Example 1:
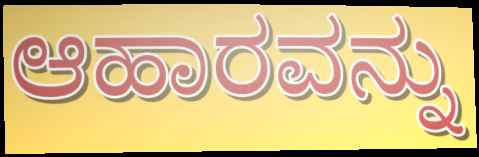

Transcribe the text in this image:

ಆಹಾರವನ್ನು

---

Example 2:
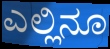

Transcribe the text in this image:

ಎಲ್ಲಿನೂ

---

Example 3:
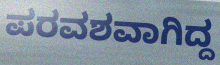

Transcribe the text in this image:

ಪರವಶವಾಗಿದ್ದ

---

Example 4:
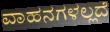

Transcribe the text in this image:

ವಾಹನಗಳಲ್ಲದೆ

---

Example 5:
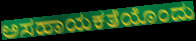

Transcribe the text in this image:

ಅಸಹಾಯಕತೆಯೊಂದು